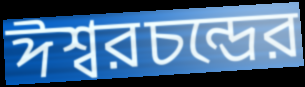
ঈশ্বরচন্দ্রের